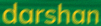
darshan